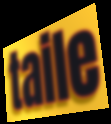
taile